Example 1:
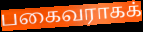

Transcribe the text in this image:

பகைவராகக்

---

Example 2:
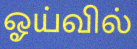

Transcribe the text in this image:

ஓய்வில்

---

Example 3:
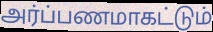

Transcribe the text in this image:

அர்ப்பணமாகட்டும்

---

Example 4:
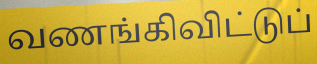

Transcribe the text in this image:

வணங்கிவிட்டுப்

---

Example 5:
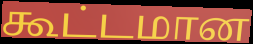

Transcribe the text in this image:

கூட்டமான